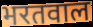
भरतवाल